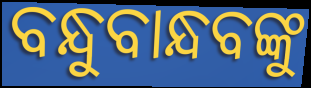
ବନ୍ଧୁବାନ୍ଧବଙ୍କୁ